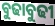
ବୁଢାବୁଢୀ